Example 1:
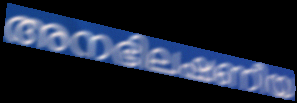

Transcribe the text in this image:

അനഭിലഷണീയ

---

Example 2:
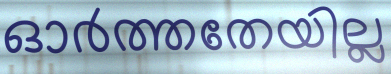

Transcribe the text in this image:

ഓർത്തതേയില്ല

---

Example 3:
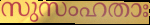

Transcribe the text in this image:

സുസംഹതാഃ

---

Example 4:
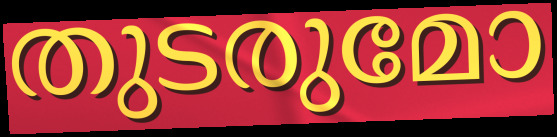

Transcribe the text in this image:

തുടരുമോ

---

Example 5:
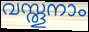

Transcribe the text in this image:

വസ്തൂനാം